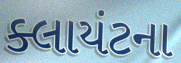
ક્લાયંટના